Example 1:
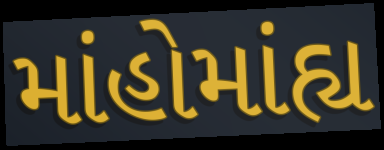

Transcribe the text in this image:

માંહોમાંહ્ય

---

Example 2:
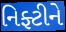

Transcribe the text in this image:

નિફ્ટીને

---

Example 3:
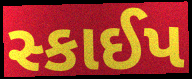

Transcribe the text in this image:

સ્કાઈપ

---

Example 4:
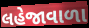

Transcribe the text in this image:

લહેજાવાળા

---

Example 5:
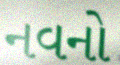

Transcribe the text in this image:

નવનો